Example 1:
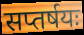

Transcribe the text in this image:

सप्तर्षयः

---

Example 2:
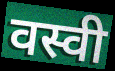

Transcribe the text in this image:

वस्वी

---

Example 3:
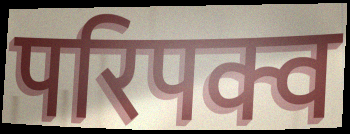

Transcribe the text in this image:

परिपक्व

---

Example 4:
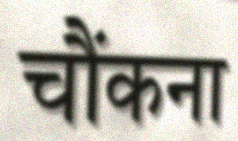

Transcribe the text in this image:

चौंकना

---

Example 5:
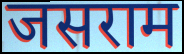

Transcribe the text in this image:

जसराम